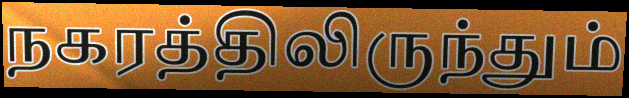
நகரத்திலிருந்தும்